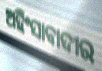
ଅହିଂସାବାଦୀର